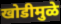
खोडीमुळे